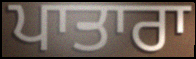
ਪਾਤਾਰਾ